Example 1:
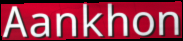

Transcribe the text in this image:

Aankhon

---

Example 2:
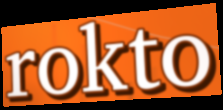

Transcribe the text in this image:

rokto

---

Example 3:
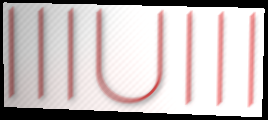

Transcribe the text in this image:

IIIUIII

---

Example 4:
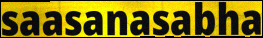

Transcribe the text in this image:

saasanasabha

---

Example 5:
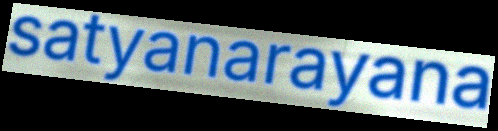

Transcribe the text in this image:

satyanarayana